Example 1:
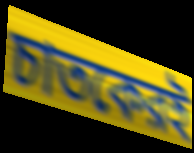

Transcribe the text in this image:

চাতকেরই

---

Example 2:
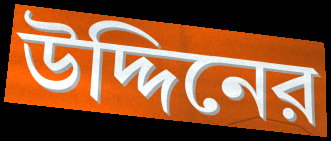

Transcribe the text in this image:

উদ্দিনের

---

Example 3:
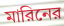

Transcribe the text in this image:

মারিনের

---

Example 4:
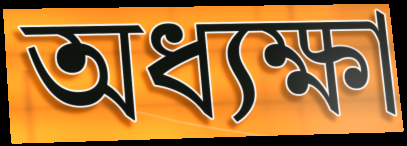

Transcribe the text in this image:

অধ্যক্ষা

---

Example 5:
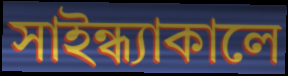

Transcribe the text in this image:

সাইন্ধ্যাকালে